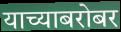
याच्याबरोबर